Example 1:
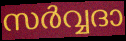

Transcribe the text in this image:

സർവ്വദാ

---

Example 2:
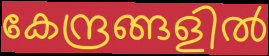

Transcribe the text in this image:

കേന്ദ്രങ്ങളിൽ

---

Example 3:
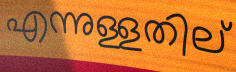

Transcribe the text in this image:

എന്നുള്ളതില്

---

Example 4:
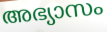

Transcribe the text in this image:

അഭ്യാസം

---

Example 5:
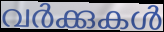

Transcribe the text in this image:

വർക്കുകൾ